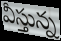
వీస్తున్న